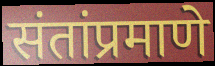
संतांप्रमाणे